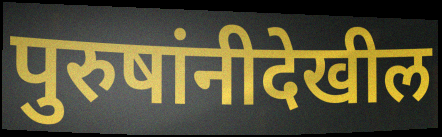
पुरुषांनीदेखील